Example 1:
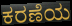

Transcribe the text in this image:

ಕರಣೆಯ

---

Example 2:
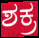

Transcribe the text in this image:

ಶಕ್ರ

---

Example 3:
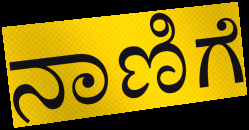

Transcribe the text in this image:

ನಾಣಿಗೆ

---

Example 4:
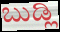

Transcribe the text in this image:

ಬುಡ್ಲಿ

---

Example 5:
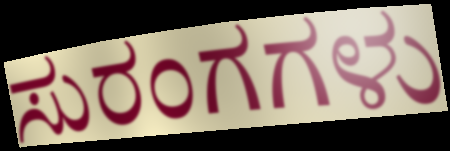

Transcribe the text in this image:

ಸುರಂಗಗಳು